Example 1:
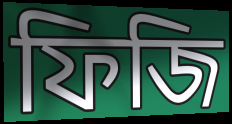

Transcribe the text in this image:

ফিজি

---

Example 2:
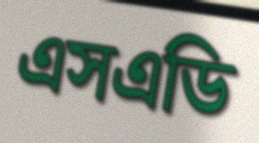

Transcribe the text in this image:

এসএডি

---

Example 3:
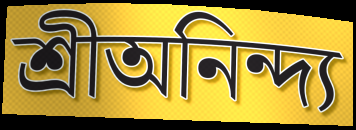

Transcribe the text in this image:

শ্রীঅনিন্দ্য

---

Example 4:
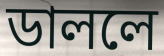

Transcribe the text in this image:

ডাললে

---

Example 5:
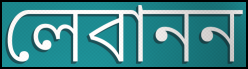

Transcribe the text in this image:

লেবানন